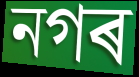
নগৰ